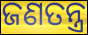
ଜଣତନ୍ତ୍ର